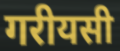
गरीयसी